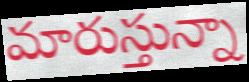
మారుస్తున్నా